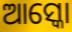
ଆସ୍କୋ